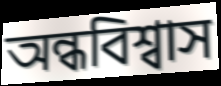
অন্ধবিশ্বাস